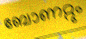
ബോണറ്റും